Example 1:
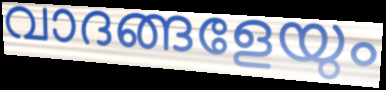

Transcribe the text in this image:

വാദങ്ങളേയും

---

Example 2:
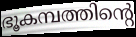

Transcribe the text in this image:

ഭൂകമ്പത്തിന്റെ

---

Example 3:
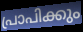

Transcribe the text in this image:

പ്രാപിക്കും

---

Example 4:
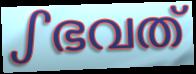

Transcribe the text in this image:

ഽഭവത്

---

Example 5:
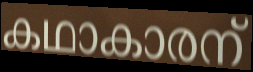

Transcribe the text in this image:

കഥാകാരന്